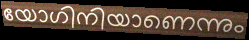
യോഗിനിയാണെന്നും